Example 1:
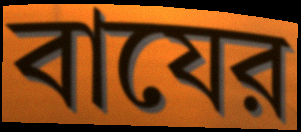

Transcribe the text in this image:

বাযের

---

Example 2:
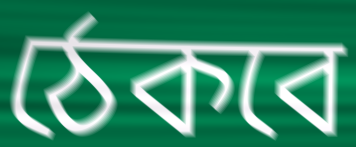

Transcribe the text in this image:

ঠেকবে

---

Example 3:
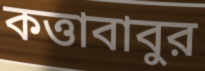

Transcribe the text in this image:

কত্তাবাবুর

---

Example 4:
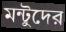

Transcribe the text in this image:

মন্টুদের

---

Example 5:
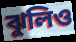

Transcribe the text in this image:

ঝুলিও